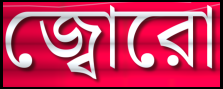
জ্বোরো